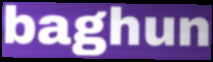
baghun